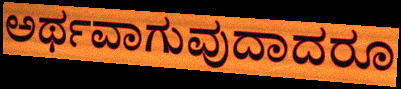
ಅರ್ಥವಾಗುವುದಾದರೂ